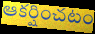
ఆకర్షించటం